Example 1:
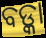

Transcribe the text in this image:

ବଡ୍କା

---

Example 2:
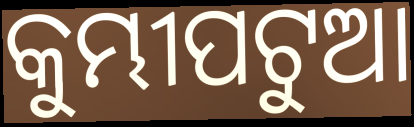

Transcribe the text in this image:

କୁମ୍ଭୀପଟୁଆ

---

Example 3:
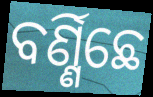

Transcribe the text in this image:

ବର୍ଣ୍ଣିଛେ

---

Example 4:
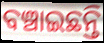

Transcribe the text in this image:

ବଞ୍ଚାଇଛନ୍ତି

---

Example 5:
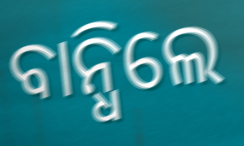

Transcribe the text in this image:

ବାନ୍ଧିଲେ